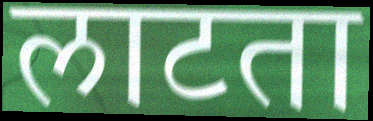
लाटता